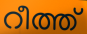
റീത്ത്